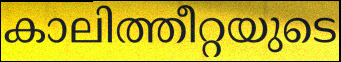
കാലിത്തീറ്റയുടെ